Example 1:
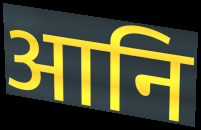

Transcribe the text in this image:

आनि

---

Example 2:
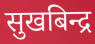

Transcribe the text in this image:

सुखबिन्द्र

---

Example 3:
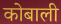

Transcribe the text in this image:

कोबाली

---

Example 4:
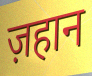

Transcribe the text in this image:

ज़हान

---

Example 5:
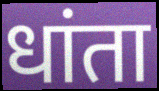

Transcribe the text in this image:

धांता